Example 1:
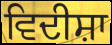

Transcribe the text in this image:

ਵਿਦੀਸ਼ਾ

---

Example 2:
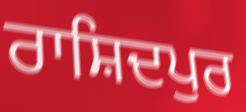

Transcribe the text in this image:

ਰਾਸ਼ਿਦਪੁਰ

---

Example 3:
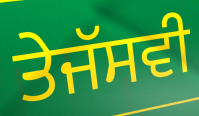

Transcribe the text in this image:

ਤੇਜੱਸਵੀ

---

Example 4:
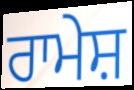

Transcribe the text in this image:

ਰਾਮੇਸ਼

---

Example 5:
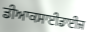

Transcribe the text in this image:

ਡੀਆਕਸਾਈਡਾਈਜ਼